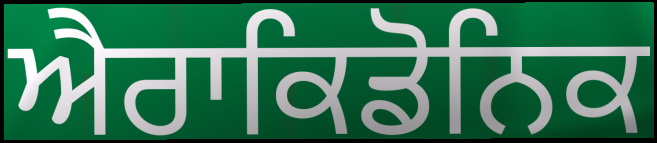
ਐਰਾਕਿਡੋਨਿਕ